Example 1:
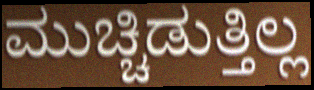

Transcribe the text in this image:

ಮುಚ್ಚಿಡುತ್ತಿಲ್ಲ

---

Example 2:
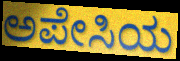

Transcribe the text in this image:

ಅಪೇಸಿಯ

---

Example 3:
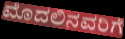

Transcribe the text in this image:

ಮೊದಲಿನವರಿಗೆ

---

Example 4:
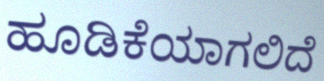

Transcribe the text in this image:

ಹೂಡಿಕೆಯಾಗಲಿದೆ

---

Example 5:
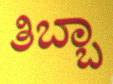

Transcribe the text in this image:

ತಿಬ್ಬಾ